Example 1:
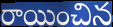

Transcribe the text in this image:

రాయించిన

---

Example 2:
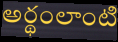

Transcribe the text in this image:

అర్థంలాంటి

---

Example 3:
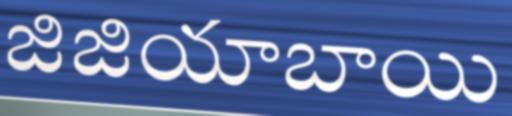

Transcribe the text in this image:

జిజియాబాయి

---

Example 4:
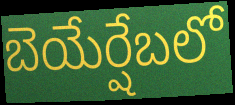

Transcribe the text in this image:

బెయేర్షేబలో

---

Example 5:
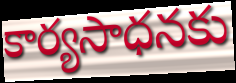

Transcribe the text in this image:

కార్యసాధనకు